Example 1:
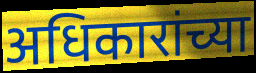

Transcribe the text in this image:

अधिकारांच्या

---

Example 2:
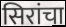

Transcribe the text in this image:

सिरांचा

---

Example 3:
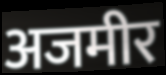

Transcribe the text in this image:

अजमीर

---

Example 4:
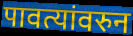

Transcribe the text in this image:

पावत्यांवरुन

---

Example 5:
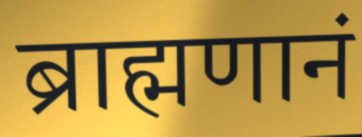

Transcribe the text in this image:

ब्राह्मणानं